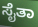
ಸೈತಾ